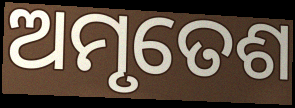
ଅମୃତେଶ